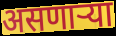
असणार्‍या